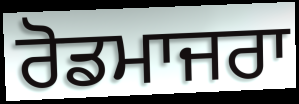
ਰੋਡਮਾਜਰਾ